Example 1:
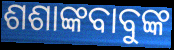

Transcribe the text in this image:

ଶଶାଙ୍କବାବୁଙ୍କ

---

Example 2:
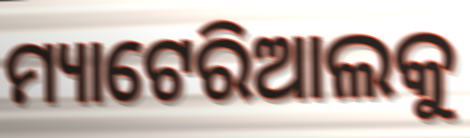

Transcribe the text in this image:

ମ୍ୟାଟେରିଆଲକୁ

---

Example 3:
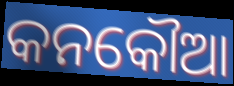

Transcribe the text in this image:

କନକୌଆ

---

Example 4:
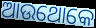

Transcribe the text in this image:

ଆଉଥୋକେ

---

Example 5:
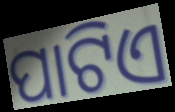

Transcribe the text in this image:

ପାଟିଏ